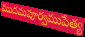
ముదమపూర్వముపేత్య